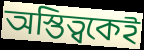
অস্তিত্বকেই